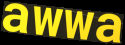
awwa